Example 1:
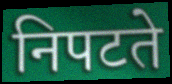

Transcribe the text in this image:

निपटते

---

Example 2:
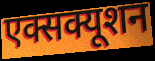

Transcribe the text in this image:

एक्सक्यूशन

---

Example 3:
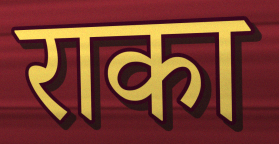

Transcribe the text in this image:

राका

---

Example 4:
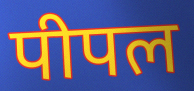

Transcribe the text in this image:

पीपल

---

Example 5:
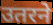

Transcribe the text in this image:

उतरने